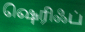
ஷெரிஃப்